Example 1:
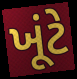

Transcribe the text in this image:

ખૂંટે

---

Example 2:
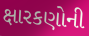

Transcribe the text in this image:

ક્ષારકણોની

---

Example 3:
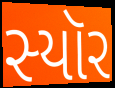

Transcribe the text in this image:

સ્યૉર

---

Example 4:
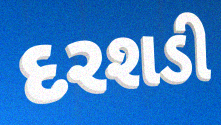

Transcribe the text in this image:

દરશડી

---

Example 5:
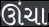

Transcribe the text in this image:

ઊંચા